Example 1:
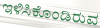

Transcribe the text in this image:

ಇಳಿಸಿಕೊಂಡಿರುವ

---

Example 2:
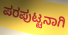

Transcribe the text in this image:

ಪರಪುಟ್ಟನಾಗಿ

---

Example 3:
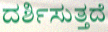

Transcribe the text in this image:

ದರ್ಶಿಸುತ್ತದೆ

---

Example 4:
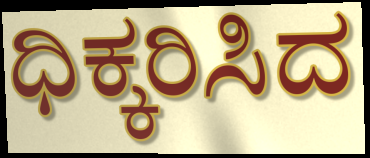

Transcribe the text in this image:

ಧಿಕ್ಕರಿಸಿದ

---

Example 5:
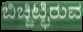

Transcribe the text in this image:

ಬಿಚ್ಚಿಟ್ಟಿರುವ